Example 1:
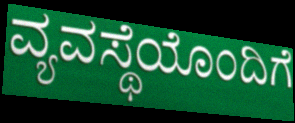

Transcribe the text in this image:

ವ್ಯವಸ್ಥೆಯೊಂದಿಗೆ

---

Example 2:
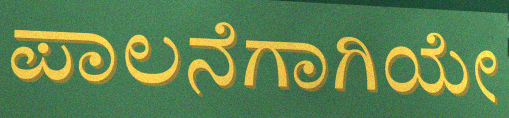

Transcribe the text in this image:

ಪಾಲನೆಗಾಗಿಯೇ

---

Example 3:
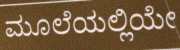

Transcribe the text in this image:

ಮೂಲೆಯಲ್ಲಿಯೇ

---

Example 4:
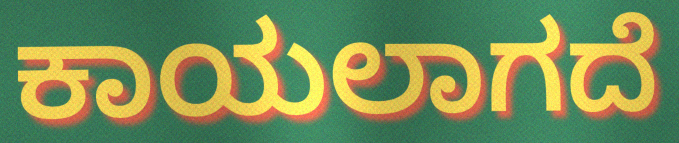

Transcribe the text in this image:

ಕಾಯಲಾಗದೆ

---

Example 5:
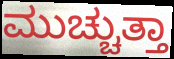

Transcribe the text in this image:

ಮುಚ್ಚುತ್ತಾ